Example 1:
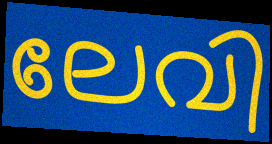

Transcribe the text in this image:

ലേവി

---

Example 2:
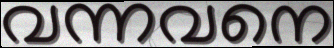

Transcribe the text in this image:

വന്നവനെ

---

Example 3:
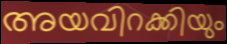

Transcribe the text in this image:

അയവിറക്കിയും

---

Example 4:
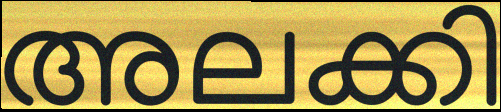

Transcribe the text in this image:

അലക്കി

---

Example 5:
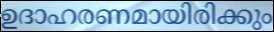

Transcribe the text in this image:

ഉദാഹരണമായിരിക്കും